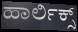
ಹಾರ್ಲಿಕ್ಸ್